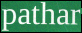
pathar